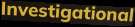
Investigational